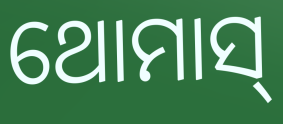
ଥୋମାସ୍